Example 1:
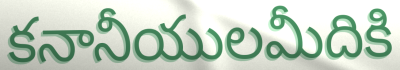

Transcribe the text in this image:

కనానీయులమీదికి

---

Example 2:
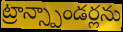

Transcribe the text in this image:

ట్రాన్స్పాండర్లను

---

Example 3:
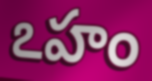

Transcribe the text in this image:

ఽహం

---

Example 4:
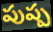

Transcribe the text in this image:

పుష్ప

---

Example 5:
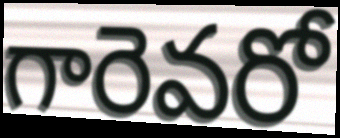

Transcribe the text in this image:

గారెవరో